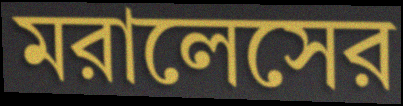
মরালেসের